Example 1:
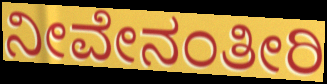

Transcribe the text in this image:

ನೀವೇನಂತೀರಿ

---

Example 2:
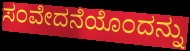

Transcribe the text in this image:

ಸಂವೇದನೆಯೊಂದನ್ನು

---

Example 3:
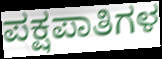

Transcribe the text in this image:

ಪಕ್ಷಪಾತಿಗಳ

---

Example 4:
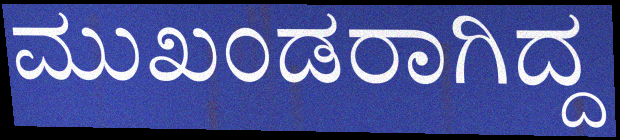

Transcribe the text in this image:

ಮುಖಂಡರಾಗಿದ್ದ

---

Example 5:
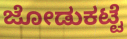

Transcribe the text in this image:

ಜೋಡುಕಟ್ಟೆ